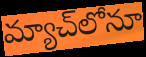
మ్యాచ్‌లోనూ